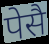
पेसै